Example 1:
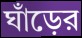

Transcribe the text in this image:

ঘাঁড়ের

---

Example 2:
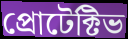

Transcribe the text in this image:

প্রোটেক্টিভ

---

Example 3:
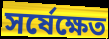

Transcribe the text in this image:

সর্ষেক্ষেত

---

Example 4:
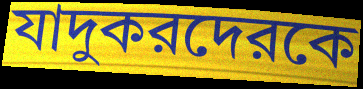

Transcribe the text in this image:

যাদুকরদেরকে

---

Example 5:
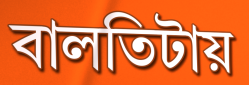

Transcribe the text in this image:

বালতিটায়